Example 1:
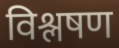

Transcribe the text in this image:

विश्लषण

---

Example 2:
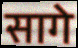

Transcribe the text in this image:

सागे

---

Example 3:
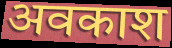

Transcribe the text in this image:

अवकाश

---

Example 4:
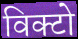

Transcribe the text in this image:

विक्टो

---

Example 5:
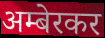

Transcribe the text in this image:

अम्बेरकर